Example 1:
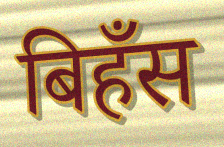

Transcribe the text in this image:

बिहँस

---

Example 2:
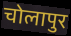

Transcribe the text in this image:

चोलापुर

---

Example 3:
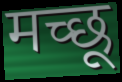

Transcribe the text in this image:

मच्छू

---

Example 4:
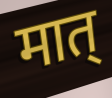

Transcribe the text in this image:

मात्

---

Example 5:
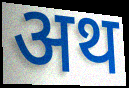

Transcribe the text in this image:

अथ